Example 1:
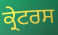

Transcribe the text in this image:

ਕ੍ਰੇਟਰਸ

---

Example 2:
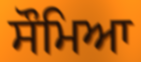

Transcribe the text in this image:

ਸੌਮਿਆ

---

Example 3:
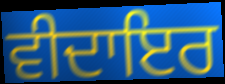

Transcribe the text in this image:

ਵੀਦਾਇਰ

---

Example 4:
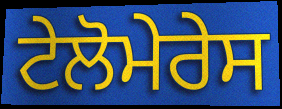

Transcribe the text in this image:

ਟੇਲੋਮੇਰੇਸ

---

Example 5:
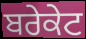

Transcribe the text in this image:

ਬਰੇਕੇਟ